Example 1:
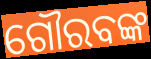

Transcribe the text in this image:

ଗୌରବଙ୍କ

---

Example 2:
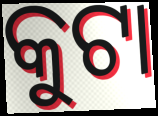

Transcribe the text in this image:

କୁଟା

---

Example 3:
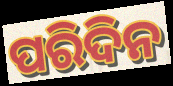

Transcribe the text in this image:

ପରିଦିନ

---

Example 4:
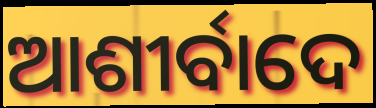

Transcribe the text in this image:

ଆଶୀର୍ବାଦେ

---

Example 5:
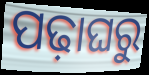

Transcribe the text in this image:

ପଢ଼ାଘରୁ